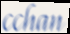
cchan